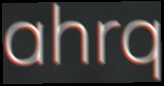
ahrq